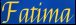
Fatima